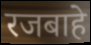
रजबाहे